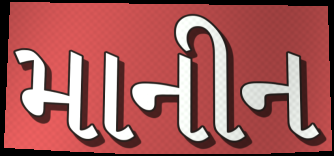
માનીન